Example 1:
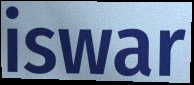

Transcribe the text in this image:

iswar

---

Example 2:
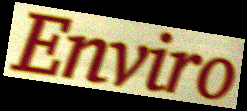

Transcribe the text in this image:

Enviro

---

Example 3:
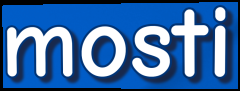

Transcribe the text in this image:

mosti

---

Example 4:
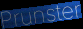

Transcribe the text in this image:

Prunster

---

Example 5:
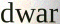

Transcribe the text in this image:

dwar